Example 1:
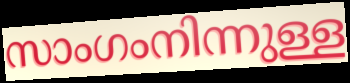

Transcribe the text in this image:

സാംഗംനിന്നുള്ള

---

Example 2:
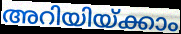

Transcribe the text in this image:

അറിയിയ്ക്കാം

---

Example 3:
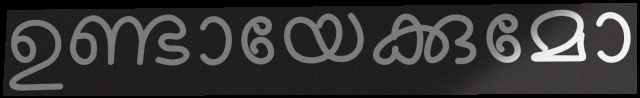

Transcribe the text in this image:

ഉണ്ടായേക്കുമോ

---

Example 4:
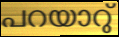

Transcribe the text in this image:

പറയാറു്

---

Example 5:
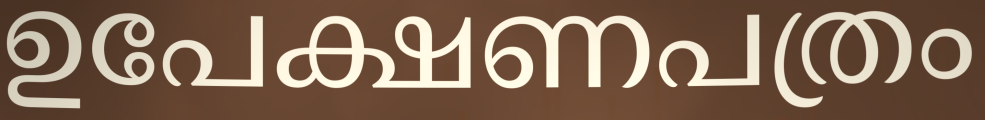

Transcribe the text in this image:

ഉപേക്ഷണപത്രം